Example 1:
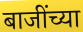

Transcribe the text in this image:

बाजींच्या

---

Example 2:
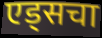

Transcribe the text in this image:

एड्सचा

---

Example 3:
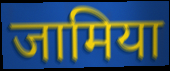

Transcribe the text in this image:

जामिया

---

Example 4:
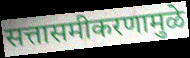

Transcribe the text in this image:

सत्तासमीकरणामुळे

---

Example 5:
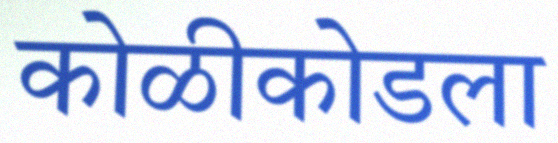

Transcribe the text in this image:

कोळीकोडला